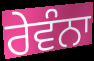
ਰੇਵੰਨਾ